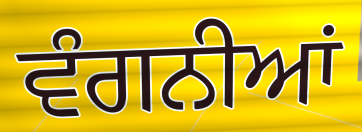
ਵੰਗਨੀਆਂ